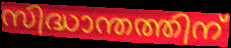
സിദ്ധാന്തത്തിന്